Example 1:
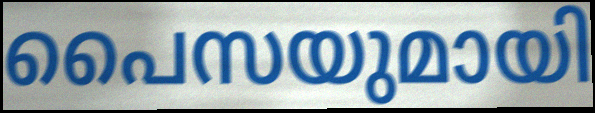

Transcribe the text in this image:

പൈസയുമായി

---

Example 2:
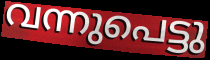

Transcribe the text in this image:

വന്നുപെട്ടു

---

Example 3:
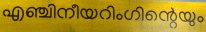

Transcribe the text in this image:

എഞ്ചിനീയറിംഗിന്റെയും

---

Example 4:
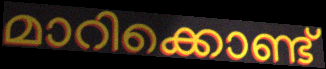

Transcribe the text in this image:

മാറിക്കൊണ്ട്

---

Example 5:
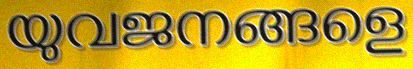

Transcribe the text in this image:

യുവജനങ്ങളെ